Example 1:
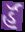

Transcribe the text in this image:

ર્હૅ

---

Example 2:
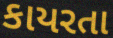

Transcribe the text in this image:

કાયરતા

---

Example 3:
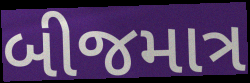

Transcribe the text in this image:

બીજમાત્ર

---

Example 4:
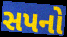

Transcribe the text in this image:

સપનો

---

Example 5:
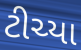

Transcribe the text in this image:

ટીચ્યા